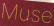
Muse